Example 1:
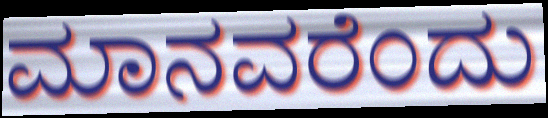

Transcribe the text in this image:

ಮಾನವರೆಂದು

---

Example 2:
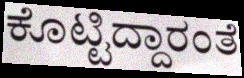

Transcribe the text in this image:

ಕೊಟ್ಟಿದ್ದಾರಂತೆ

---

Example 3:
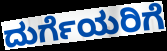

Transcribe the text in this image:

ದುರ್ಗೆಯರಿಗೆ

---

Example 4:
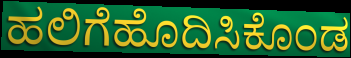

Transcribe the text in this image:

ಹಲಿಗೆಹೊದಿಸಿಕೊಂಡ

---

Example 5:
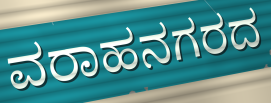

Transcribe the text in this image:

ವರಾಹನಗರದ